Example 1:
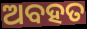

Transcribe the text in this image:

ଅବହତ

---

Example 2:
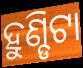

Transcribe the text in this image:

ହୁଣ୍ଡିଟା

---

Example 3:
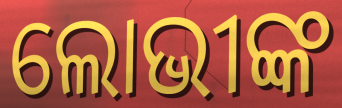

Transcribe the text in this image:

ଲୋଭୀଙ୍କ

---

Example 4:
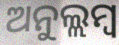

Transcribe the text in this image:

ଅନୁଲ୍ଲମ୍ବ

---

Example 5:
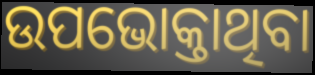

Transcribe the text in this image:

ଉପଭୋକ୍ତାଥିବା